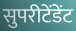
सुपरीटेंडेंट